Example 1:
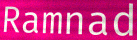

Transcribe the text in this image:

Ramnad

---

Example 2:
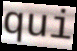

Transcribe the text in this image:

qui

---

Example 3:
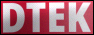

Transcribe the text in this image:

DTEK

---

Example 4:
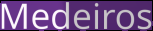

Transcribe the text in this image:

Medeiros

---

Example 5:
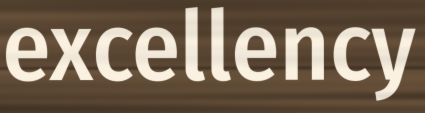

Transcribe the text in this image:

excellency